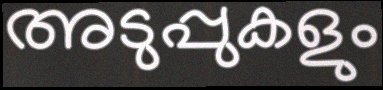
അടുപ്പുകളും